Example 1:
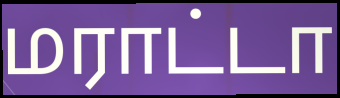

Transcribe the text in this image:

மராட்டா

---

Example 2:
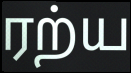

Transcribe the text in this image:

ரற்ய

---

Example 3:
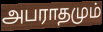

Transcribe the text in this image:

அபராதமும்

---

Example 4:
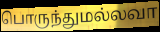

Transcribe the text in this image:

பொருந்துமல்லவா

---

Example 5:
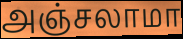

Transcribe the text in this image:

அஞ்சலாமா